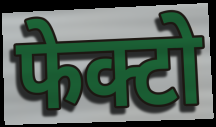
फेक्टो